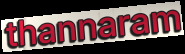
thannaram